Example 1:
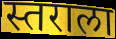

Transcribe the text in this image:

स्तराला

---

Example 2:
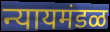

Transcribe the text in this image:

न्यायमंडळ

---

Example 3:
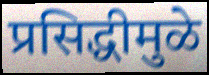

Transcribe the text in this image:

प्रसिद्धीमुळे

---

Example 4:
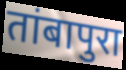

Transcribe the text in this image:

तांबापुरा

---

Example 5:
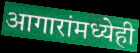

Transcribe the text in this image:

आगारांमध्येही